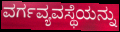
ವರ್ಗವ್ಯವಸ್ಥೆಯನ್ನು